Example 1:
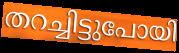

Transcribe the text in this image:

തറച്ചിട്ടുപോയി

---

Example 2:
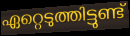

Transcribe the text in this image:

ഏറ്റെടുത്തിട്ടുണ്ട്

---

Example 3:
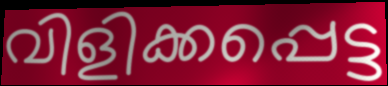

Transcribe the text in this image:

വിളിക്കപ്പെട്ട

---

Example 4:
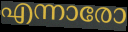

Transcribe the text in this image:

എന്നാരോ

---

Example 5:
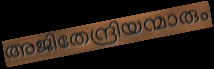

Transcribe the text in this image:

അജിതേന്ദ്രിയന്മാരും